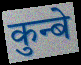
कुन्बे